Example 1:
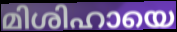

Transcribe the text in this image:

മിശിഹായെ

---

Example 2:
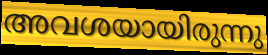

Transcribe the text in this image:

അവശയായിരുന്നു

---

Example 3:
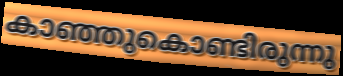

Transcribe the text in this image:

കാഞ്ഞുകൊണ്ടിരുന്നു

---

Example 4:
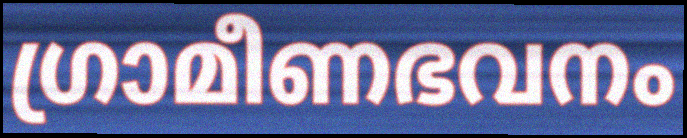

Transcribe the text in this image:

ഗ്രാമീണഭവനം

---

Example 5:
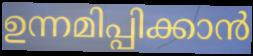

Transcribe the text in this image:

ഉന്നമിപ്പിക്കാൻ